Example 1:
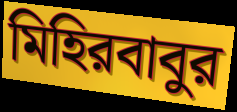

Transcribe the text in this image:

মিহিরবাবুর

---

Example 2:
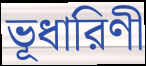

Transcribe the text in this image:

ভূধারিণী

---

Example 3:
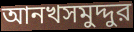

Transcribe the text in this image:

আনখসমুদ্দুর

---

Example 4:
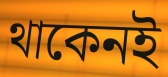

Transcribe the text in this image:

থাকেনই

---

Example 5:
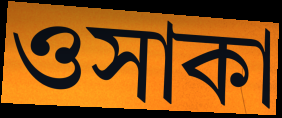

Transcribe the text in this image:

ওসাকা